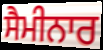
ਸੈਮੀਨਾਰ